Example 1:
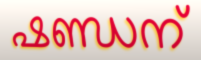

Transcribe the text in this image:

ഷണ്ഡന്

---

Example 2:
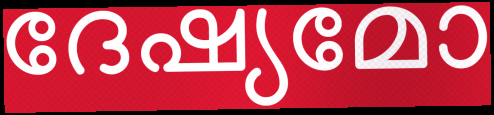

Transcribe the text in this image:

ദേഷ്യമോ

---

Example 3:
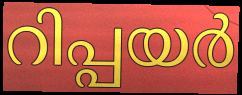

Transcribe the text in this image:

റിപ്പയർ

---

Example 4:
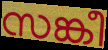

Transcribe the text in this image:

സങ്കീ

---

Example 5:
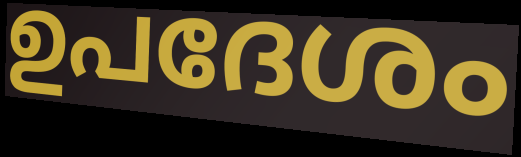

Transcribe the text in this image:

ഉപദേശം